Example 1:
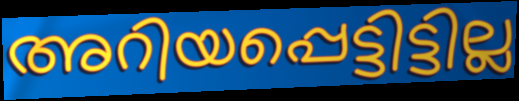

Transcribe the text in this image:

അറിയപ്പെട്ടിട്ടില്ല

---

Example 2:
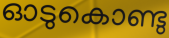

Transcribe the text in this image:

ഓടുകൊണ്ടു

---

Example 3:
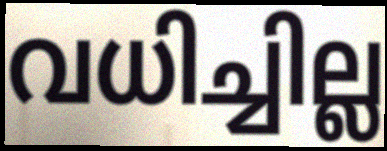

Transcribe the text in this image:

വധിച്ചില്ല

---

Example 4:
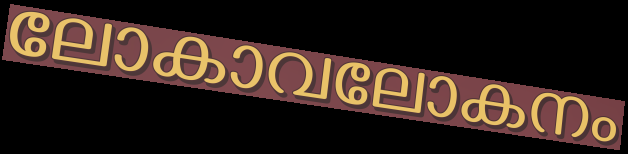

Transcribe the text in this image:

ലോകാവലോകനം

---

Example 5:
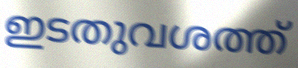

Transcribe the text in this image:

ഇടതുവശത്ത്